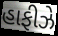
હાફીઝે